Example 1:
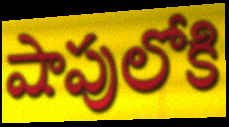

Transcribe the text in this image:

షాపులోకి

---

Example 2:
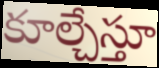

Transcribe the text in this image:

కూల్చేస్తూ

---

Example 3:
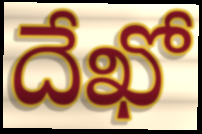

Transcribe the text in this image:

దేఖో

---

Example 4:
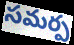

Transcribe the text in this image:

సమర్ప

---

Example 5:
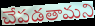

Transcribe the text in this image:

చేపడతామని